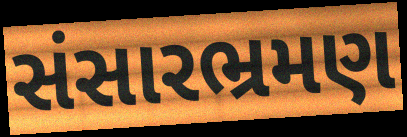
સંસારભ્રમણ